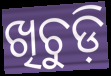
ଖିଚୁଡ଼ି